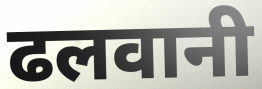
ढलवानी